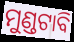
ମୁଣ୍ଡଟାବି